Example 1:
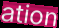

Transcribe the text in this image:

ation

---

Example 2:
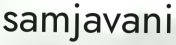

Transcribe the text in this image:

samjavani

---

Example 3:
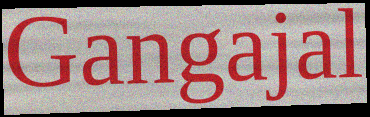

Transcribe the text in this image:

Gangajal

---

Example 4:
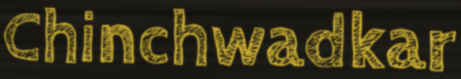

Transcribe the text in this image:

Chinchwadkar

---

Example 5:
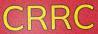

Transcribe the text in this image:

CRRC